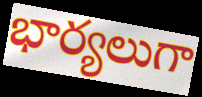
భార్యలుగా